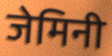
जेमिनी